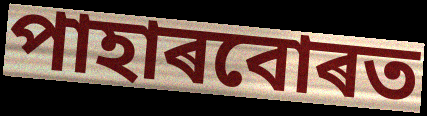
পাহাৰবোৰত